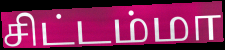
சிட்டம்மா